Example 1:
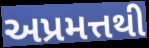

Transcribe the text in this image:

અપ્રમત્તથી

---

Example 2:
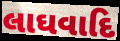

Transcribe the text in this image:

લાઘવાદિ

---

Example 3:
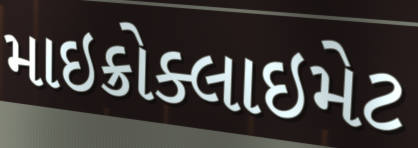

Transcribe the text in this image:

માઇક્રોક્લાઇમેટ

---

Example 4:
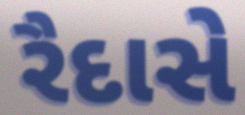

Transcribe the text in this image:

રૈદાસે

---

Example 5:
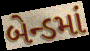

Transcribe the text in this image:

બેન્ડમાં